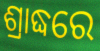
ଶ୍ରାଦ୍ଧରେ